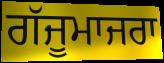
ਗੱਜੂਮਾਜਰਾ